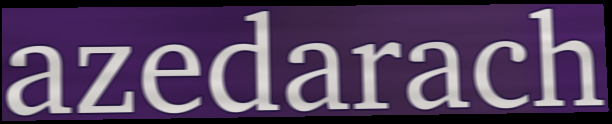
azedarach